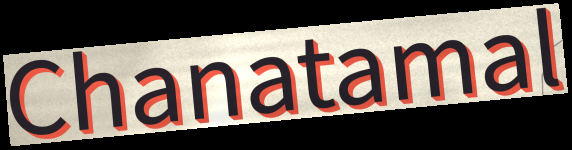
Chanatamal